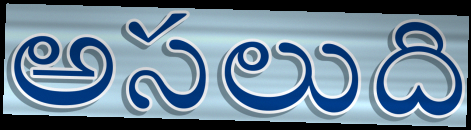
అసలుది